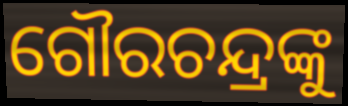
ଗୌରଚନ୍ଦ୍ରଙ୍କୁ